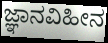
ಜ್ಞಾನವಿಹೀನ